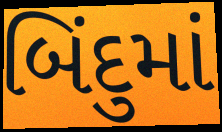
બિંદુમાં